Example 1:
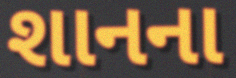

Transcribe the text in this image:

શાનના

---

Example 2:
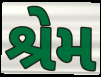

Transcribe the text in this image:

શ્રેમ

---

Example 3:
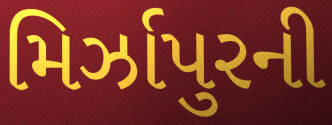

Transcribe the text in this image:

મિર્ઝાપુરની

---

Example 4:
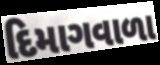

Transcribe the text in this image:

દિમાગવાળા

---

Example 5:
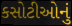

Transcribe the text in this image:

કસોટીઓનું